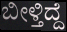
ಬೀಳ್ತಿದ್ದೆ